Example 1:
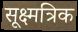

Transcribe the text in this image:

सूक्ष्मत्रिक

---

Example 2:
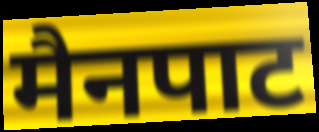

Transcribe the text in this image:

मैनपाट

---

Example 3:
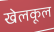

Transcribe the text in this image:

खेलकूल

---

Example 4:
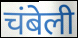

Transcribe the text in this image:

चंबेली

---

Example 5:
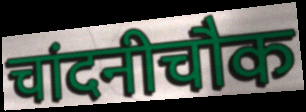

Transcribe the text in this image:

चांदनीचौक